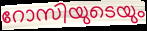
റോസിയുടെയും